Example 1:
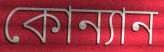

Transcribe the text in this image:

কোন্যান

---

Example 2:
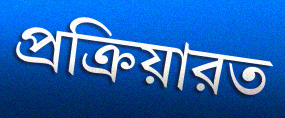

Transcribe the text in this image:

প্রক্রিয়ারত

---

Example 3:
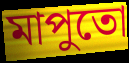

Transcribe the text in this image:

মাপুতো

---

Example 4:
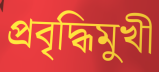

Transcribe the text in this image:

প্রবৃদ্ধিমুখী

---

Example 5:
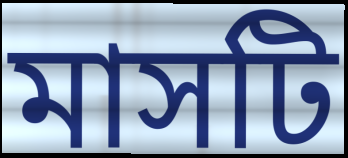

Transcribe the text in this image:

মাসটি